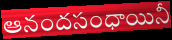
ఆనందసంధాయినీ